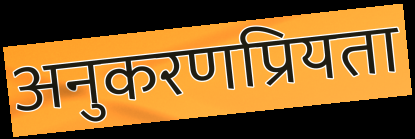
अनुकरणप्रियता